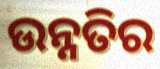
ଉନ୍ନତିର